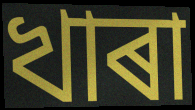
খাৰা